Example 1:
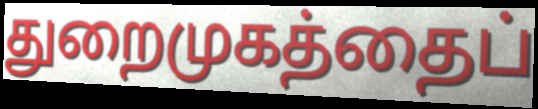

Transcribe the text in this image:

துறைமுகத்தைப்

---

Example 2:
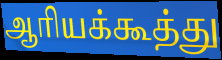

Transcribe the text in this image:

ஆரியக்கூத்து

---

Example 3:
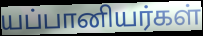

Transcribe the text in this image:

யப்பானியர்கள்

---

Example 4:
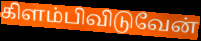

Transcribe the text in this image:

கிளம்பிவிடுவேன்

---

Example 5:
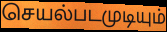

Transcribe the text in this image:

செயல்படமுடியும்